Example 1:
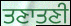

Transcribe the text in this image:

ਤਣਾਤਣੀ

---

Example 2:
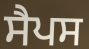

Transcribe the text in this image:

ਸੈਪਸ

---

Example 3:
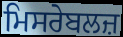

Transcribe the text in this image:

ਮਿਸਰੇਬਲਜ਼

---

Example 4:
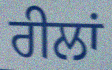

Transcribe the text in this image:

ਰੀਲਾਂ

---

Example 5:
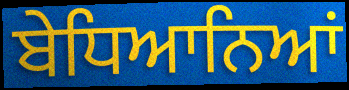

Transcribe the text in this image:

ਬੇਧਿਆਨਿਆਂ